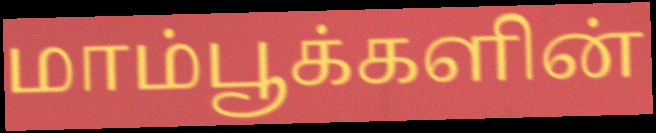
மாம்பூக்களின்